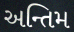
અન્તિમ